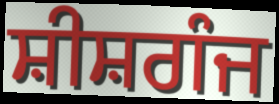
ਸ਼ੀਸ਼ਗੰਜ